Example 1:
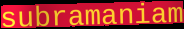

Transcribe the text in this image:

subramaniam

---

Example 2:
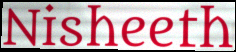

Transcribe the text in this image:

Nisheeth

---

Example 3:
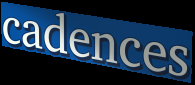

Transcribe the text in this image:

cadences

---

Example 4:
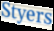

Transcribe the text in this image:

Styers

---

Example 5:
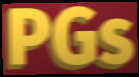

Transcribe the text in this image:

PGs